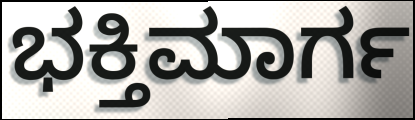
ಭಕ್ತಿಮಾರ್ಗ